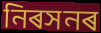
নিৰসনৰ